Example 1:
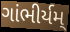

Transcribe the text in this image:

ગાંભીર્યમ્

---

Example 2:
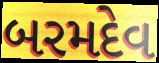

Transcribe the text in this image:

બરમદેવ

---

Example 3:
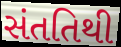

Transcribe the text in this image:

સંતતિથી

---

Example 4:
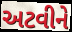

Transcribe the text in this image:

અટવીને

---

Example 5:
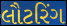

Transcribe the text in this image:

લૌટરિંગ